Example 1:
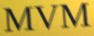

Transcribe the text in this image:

MVM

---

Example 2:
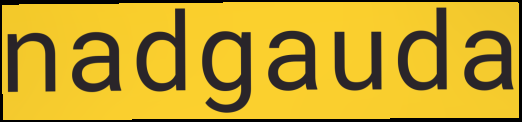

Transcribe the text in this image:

nadgauda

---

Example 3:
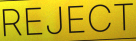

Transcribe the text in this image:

REJECT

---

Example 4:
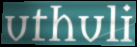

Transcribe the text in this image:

uthuli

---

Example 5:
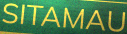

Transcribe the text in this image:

SITAMAU